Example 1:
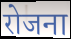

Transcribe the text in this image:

रोजना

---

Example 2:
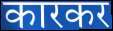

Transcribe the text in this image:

कारकर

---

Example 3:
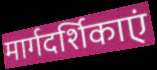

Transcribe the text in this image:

मार्गदर्शिकाएं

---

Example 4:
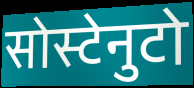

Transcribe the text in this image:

सोस्टेनुटो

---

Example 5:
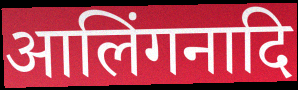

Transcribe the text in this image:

आलिंगनादि